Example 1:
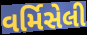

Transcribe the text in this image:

વર્મિસેલી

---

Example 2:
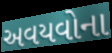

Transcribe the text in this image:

અવયવોના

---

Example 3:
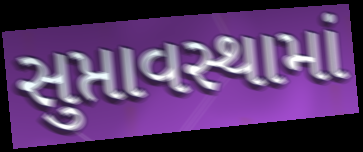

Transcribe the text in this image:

સુપ્તાવસ્થામાં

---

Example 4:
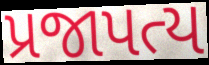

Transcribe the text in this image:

પ્રજાપત્ય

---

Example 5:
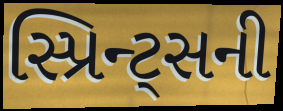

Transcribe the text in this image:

સ્પ્રિન્ટ્સની